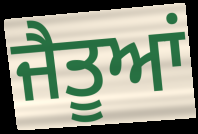
ਜੈਤੂਆਂ